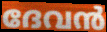
ദേവൻ